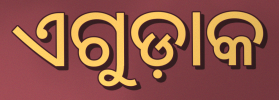
ଏଗୁଡ଼ାକ